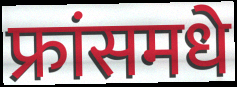
फ्रांसमधे